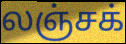
லஞ்சக்